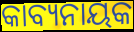
କାବ୍ୟନାୟକ